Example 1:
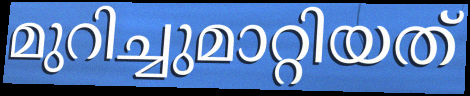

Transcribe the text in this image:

മുറിച്ചുമാറ്റിയത്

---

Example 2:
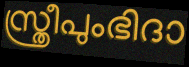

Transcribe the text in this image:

സ്ത്രീപുംഭിദാ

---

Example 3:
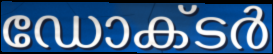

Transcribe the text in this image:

ഡോക്‌ടർ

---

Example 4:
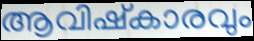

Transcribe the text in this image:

ആവിഷ്കാരവും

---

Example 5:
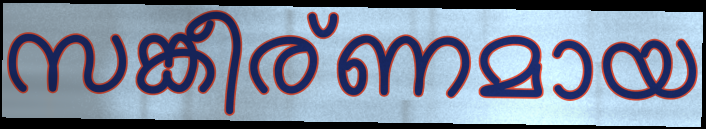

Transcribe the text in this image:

സങ്കീര്ണമായ